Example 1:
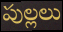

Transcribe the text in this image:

పుల్లలు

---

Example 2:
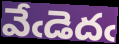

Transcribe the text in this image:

వేఁడెదఁ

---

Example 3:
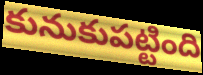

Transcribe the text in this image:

కునుకుపట్టింది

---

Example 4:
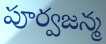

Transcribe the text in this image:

పూర్వజన్మ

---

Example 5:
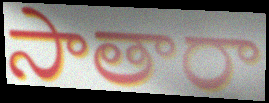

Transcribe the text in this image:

సాతారా